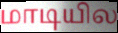
மாடியில